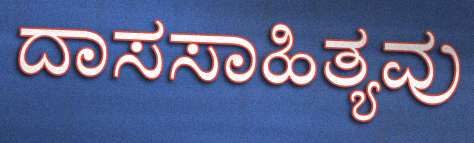
ದಾಸಸಾಹಿತ್ಯವು